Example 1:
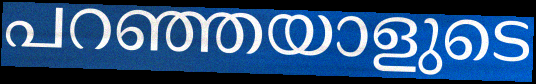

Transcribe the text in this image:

പറഞ്ഞയാളുടെ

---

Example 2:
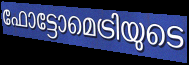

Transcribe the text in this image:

ഫോട്ടോമെട്രിയുടെ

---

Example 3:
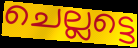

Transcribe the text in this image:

ചെല്ലട്ടെ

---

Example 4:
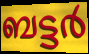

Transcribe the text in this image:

ബട്ടർ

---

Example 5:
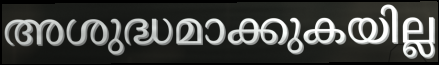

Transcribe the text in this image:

അശുദ്ധമാക്കുകയില്ല